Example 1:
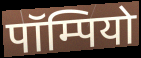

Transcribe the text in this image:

पॉम्पियो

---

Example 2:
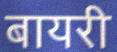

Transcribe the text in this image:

बायरी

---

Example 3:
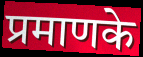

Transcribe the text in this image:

प्रमाणके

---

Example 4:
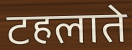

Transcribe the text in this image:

टहलाते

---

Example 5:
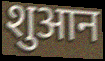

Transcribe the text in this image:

शुआन